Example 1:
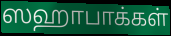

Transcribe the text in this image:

ஸஹாபாக்கள்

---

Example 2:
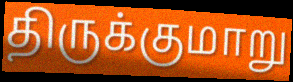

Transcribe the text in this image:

திருக்குமாறு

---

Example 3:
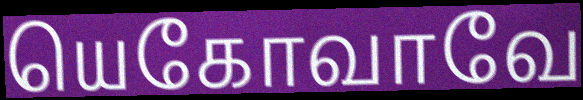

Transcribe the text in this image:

யெகோவாவே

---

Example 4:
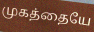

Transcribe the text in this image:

முகத்தையே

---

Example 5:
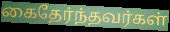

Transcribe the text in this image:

கைதேர்ந்தவர்கள்